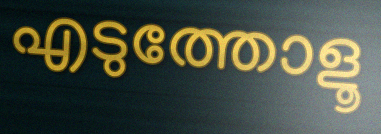
എടുത്തോളൂ